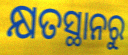
କ୍ଷତସ୍ଥାନରୁ